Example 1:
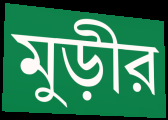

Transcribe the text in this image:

মুড়ীর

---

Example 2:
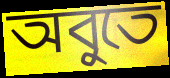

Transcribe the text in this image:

অবুতে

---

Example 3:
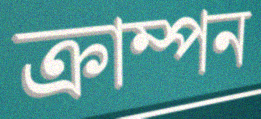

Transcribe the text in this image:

ক্রাম্পন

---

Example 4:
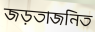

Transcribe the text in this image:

জড়তাজনিত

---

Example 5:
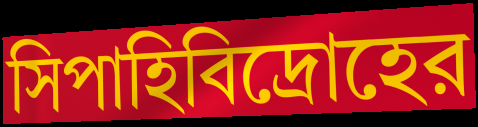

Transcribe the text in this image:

সিপাহিবিদ্রোহের